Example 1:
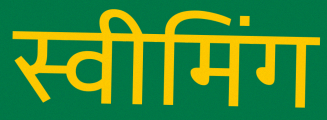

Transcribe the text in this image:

स्वीमिंग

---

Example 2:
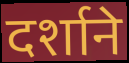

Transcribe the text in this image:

दर्शाने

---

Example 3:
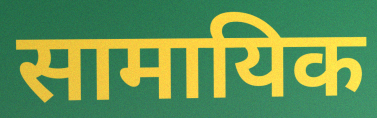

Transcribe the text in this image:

सामायिक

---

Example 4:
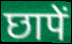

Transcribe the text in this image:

छापें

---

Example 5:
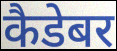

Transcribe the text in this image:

कैडेबर